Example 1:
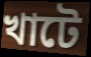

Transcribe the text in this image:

খাটে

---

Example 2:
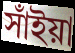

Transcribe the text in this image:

সাঁইয়া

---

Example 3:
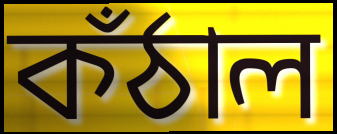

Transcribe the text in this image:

কঁঠাল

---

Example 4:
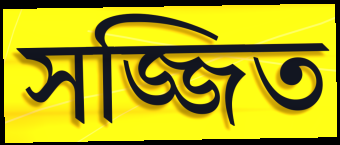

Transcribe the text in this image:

সজ্জিত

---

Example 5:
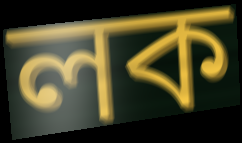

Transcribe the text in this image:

লক